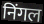
निंगल